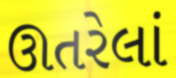
ઊતરેલાં